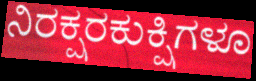
ನಿರಕ್ಷರಕುಕ್ಷಿಗಳೂ